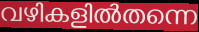
വഴികളിൽതന്നെ